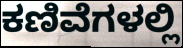
ಕಣಿವೆಗಳಲ್ಲಿ